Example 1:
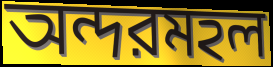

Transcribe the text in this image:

অন্দরমহল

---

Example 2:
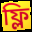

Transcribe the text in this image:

ফ্লি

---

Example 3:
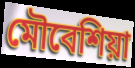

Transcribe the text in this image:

মৌবেশিয়া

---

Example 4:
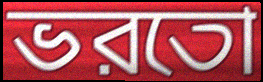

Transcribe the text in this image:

ভরতো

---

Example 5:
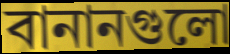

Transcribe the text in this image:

বানানগুলো